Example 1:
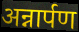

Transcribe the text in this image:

अन्नार्पण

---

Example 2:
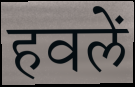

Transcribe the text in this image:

हवलें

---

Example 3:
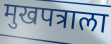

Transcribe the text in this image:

मुखपत्राला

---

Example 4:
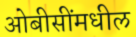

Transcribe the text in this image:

ओबीसींमधील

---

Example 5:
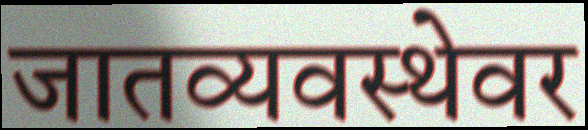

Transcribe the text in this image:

जातव्यवस्थेवर